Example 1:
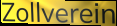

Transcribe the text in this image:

Zollverein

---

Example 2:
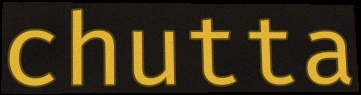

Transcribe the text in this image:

chutta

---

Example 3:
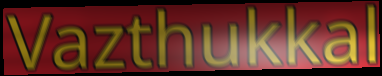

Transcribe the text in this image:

Vazthukkal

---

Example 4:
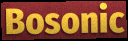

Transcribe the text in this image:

Bosonic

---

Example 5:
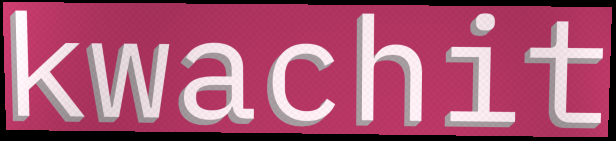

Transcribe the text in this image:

kwachit